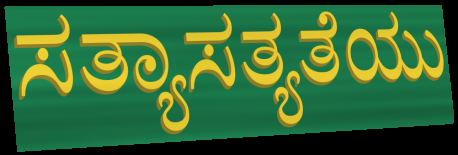
ಸತ್ಯಾಸತ್ಯತೆಯು